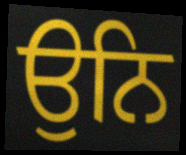
ਉਨਿ